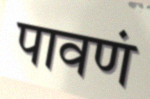
पावणं